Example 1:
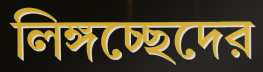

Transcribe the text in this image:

লিঙ্গচ্ছেদের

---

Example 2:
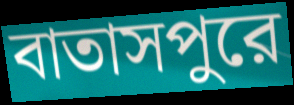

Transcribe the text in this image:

বাতাসপুরে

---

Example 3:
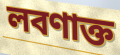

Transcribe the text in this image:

লবণাক্ত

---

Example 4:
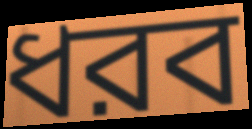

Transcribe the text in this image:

ধরব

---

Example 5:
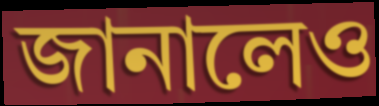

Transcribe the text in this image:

জানালেও